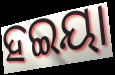
ହଇୟା